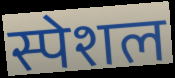
स्पेशल